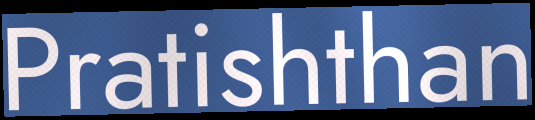
Pratishthan